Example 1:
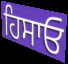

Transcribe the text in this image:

ਹਿਸਾਓ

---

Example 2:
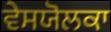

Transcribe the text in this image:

ਵੇਸਯੋਲਕਾ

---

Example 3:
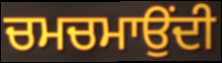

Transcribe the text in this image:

ਚਮਚਮਾਉਂਦੀ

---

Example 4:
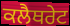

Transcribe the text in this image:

ਕਲੈਥਰੇਟ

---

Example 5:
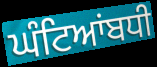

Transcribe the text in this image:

ਘੰਟਿਆਂਬਧੀ